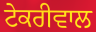
ਟੇਕਰੀਵਾਲ